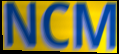
NCM